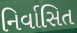
નિર્વાસિત